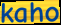
kaho